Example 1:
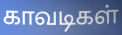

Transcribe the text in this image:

காவடிகள்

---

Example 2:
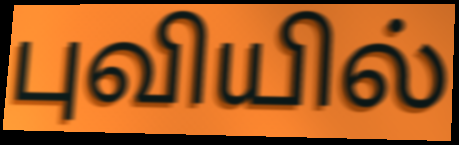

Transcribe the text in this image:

புவியில்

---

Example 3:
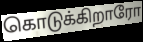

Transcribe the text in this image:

கொடுக்கிறாரோ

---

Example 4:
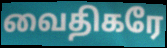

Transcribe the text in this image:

வைதிகரே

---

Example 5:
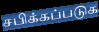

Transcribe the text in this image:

சபிக்கப்படுக